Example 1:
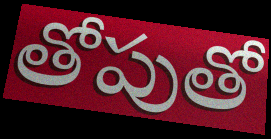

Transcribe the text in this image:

తోపుతో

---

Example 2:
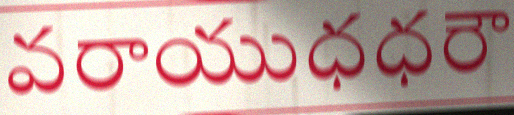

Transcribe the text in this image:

వరాయుధధరౌ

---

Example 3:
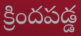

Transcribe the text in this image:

క్రిందపడ్డ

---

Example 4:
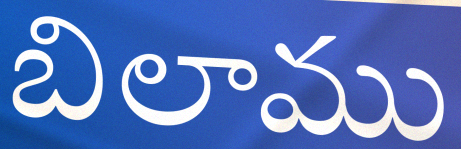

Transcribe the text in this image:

బిలాము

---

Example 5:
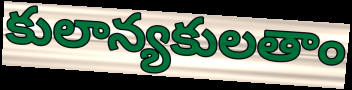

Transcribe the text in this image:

కులాన్యకులతాం